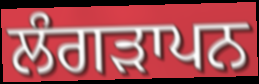
ਲੰਗੜਾਪਨ